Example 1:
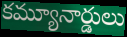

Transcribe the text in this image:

కమ్యూనార్డులు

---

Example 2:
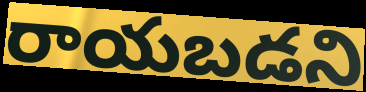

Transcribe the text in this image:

రాయబడని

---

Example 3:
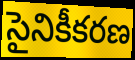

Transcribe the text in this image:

సైనికీకరణ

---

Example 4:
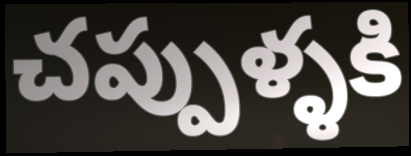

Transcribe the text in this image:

చప్పుళ్ళకి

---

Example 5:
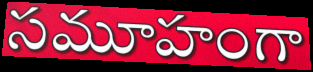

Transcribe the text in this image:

సమూహంగా